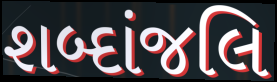
શબ્દાંજલિ